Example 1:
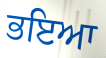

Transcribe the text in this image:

ਭਇਆ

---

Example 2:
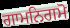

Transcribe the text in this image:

ਗਾਮਨਿਗਮੋ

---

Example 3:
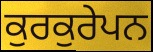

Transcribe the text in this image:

ਕੁਰਕੁਰੇਪਨ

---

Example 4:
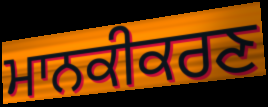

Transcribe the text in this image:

ਮਾਨਕੀਕਰਣ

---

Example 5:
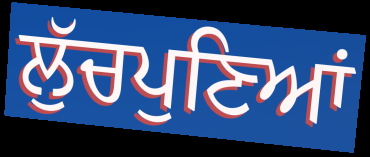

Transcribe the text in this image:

ਲੁੱਚਪੁਣਿਆਂ